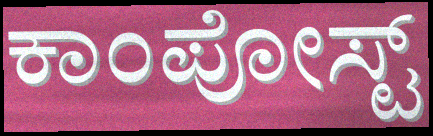
ಕಾಂಪೋಸ್ಟ್